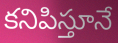
కనిపిస్తూనే